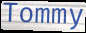
Tommy